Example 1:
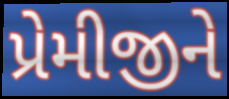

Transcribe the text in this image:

પ્રેમીજીને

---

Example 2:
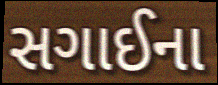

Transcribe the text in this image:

સગાઈના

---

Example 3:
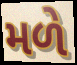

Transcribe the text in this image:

મળે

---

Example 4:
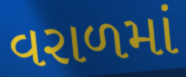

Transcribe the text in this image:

વરાળમાં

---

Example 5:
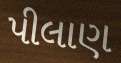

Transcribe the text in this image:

પીલાણ